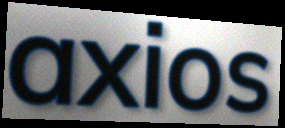
axios